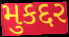
મુકદ્દર